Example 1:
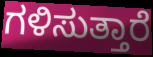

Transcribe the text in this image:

ಗಳಿಸುತ್ತಾರೆ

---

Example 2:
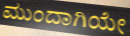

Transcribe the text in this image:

ಮುಂದಾಗಿಯೇ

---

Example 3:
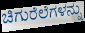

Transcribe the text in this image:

ಚಿಗುರೆಲೆಗಳನ್ನು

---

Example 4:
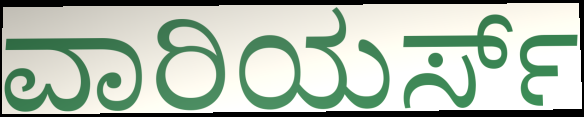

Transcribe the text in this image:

ವಾರಿಯರ್ಸ್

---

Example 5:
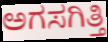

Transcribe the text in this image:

ಅಗಸಗಿತ್ತಿ